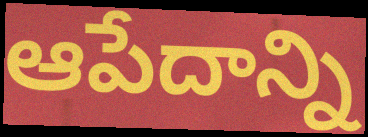
ఆపేదాన్ని